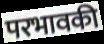
परभावकी